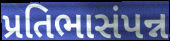
પ્રતિભાસંપન્ન